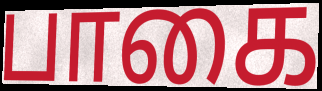
பாகை